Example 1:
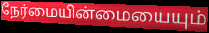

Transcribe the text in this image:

நேர்மையின்மையையும்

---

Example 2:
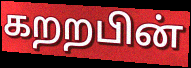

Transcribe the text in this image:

கறறபின்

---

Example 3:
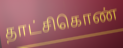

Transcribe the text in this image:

தாட்சிகொண்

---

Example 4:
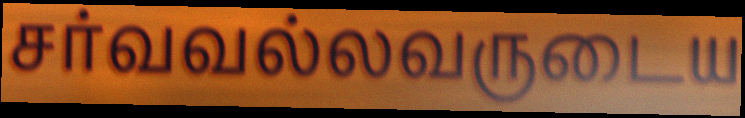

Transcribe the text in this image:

சர்வவல்லவருடைய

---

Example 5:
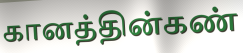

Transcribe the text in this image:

கானத்தின்கண்